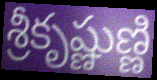
శ్రీకృష్ణుణ్ణి